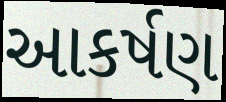
આકર્ષણ